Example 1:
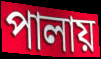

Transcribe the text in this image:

পালায়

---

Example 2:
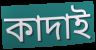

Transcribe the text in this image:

কাদাই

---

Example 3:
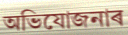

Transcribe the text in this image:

অভিযোজনাৰ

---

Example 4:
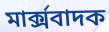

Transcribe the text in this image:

মাৰ্ক্সবাদক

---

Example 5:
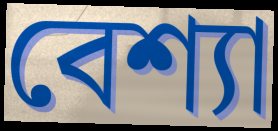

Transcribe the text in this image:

বেশ্যা